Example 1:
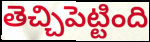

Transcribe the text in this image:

తెచ్చిపెట్టింది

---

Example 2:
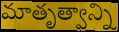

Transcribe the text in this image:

మాతృత్వాన్ని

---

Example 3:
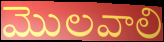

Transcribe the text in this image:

మొలవాలి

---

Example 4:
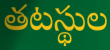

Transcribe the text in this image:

తటస్థుల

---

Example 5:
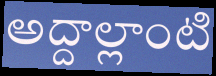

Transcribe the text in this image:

అద్దాల్లాంటి